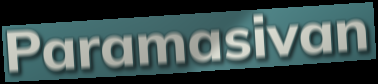
Paramasivan